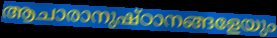
ആചാരാനുഷ്ഠാനങ്ങളേയും